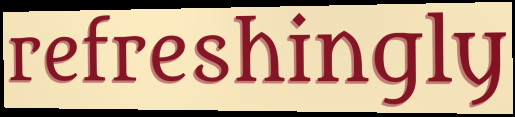
refreshingly